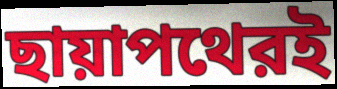
ছায়াপথেরই